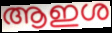
ആഇശ